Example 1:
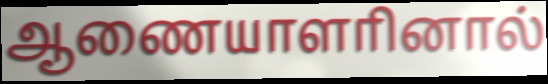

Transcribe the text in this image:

ஆணையாளரினால்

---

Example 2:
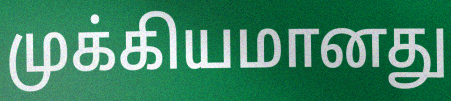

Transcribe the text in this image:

முக்கியமானது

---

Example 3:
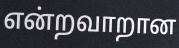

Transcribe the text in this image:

என்றவாறான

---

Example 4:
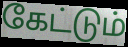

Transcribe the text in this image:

கேட்டும்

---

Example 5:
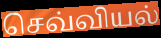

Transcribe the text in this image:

செவ்வியல்